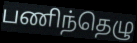
பணிந்தெழு